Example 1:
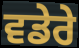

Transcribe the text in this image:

ਵਡੇਰੇ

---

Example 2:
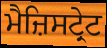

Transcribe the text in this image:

ਮੈਜ਼ਿਸਟ੍ਰੇਟ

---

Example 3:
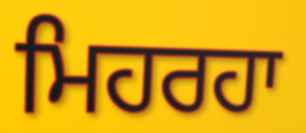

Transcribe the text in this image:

ਮਿਹਰਹਾ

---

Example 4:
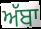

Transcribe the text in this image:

ਅੱਬਾ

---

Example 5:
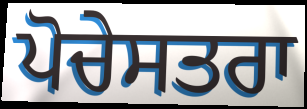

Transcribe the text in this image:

ਪੋਚੇਸਤਰਾ